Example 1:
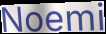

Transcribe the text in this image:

Noemi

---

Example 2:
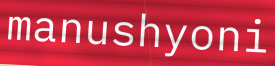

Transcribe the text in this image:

manushyoni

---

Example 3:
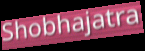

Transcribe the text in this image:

Shobhajatra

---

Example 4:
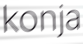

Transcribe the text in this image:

konja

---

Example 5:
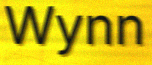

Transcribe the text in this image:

Wynn